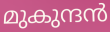
മുകുന്ദൻ